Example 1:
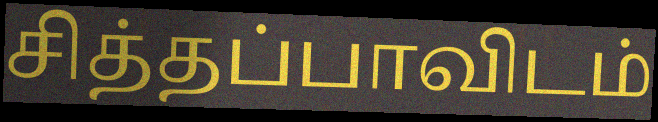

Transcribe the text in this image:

சித்தப்பாவிடம்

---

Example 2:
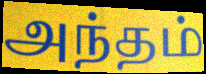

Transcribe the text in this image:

அந்தம்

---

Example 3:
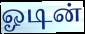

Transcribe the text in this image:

ஓடின்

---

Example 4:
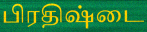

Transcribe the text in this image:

பிரதிஷ்டை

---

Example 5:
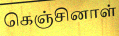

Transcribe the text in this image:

கெஞ்சினாள்